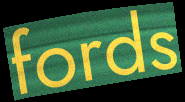
fords